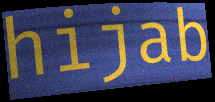
hijab